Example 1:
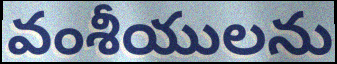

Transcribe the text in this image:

వంశీయులను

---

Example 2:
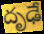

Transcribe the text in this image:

దృఢే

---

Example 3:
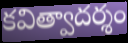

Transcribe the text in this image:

కవిత్వాదర్శం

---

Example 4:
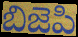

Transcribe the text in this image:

బిజెపి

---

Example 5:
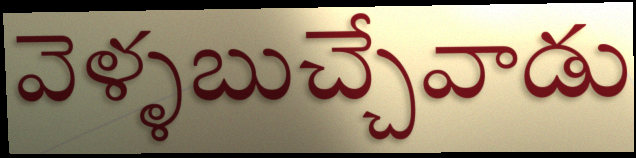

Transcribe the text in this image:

వెళ్ళబుచ్చేవాడు